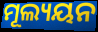
ମୂଲ୍ୟୟନ